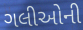
ગલીઓની